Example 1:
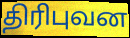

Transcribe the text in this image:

திரிபுவன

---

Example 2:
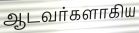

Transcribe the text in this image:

ஆடவர்களாகிய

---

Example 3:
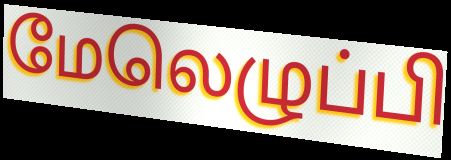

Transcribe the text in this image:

மேலெழுப்பி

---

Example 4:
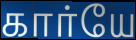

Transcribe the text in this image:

கார்யே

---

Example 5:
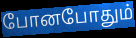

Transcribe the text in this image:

போனபோதும்